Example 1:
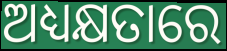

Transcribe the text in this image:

ଅଧ୍ଯକ୍ଷତାରେ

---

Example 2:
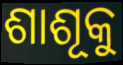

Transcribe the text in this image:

ଶାଶୂକୁ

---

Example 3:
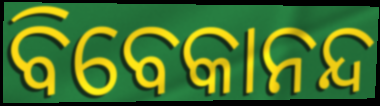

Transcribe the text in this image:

ବିବେକାନନ୍ଦ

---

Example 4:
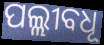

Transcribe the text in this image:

ପଲ୍ଲୀବଧୂ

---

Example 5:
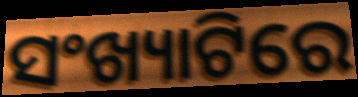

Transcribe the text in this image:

ସଂଖ୍ୟାଟିରେ